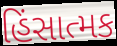
હિંસાત્મક